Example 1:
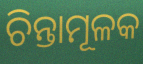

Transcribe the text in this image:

ଚିନ୍ତାମୂଳକ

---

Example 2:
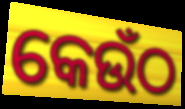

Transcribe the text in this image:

କେଉଁଠ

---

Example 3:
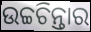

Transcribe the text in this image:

ଉଚ୍ଚଚିନ୍ତାର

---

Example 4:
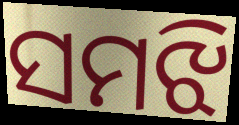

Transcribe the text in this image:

ସମଝି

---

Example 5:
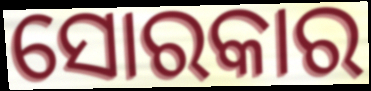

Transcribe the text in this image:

ସୋରକାର